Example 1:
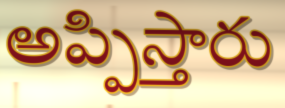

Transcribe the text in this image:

అప్పిస్తారు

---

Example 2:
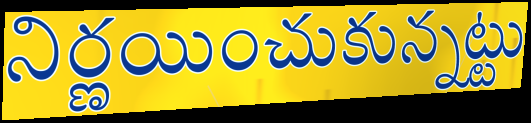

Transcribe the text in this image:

నిర్ణయించుకున్నట్టు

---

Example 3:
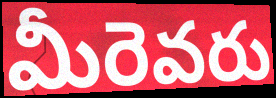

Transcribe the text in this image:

మీరెవరు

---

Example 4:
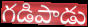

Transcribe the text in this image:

గడిపాడు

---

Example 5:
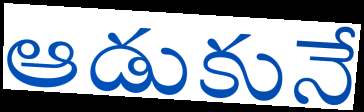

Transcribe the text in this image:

ఆడుకునే